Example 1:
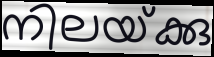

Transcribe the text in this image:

നിലയ്‌ക്കു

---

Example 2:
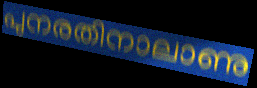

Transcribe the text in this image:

പുനരതിനാലാണു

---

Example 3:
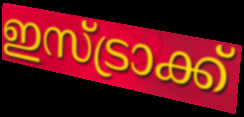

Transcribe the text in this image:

ഇസ്ട്രാക്ക്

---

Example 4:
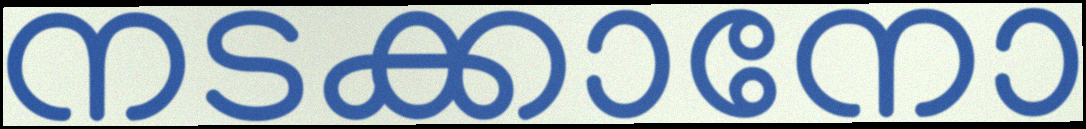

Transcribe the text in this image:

നടക്കാനോ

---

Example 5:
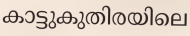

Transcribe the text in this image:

കാട്ടുകുതിരയിലെ